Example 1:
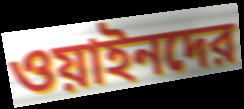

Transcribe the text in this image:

ওয়াইনদের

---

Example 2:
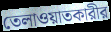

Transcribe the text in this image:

তেলাওয়াতকারীর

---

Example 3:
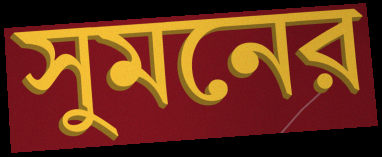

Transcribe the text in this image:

সুমনের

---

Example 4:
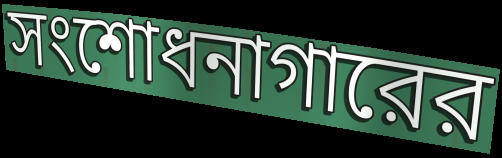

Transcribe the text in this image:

সংশোধনাগারের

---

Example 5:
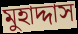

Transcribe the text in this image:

মুহাদ্দাস